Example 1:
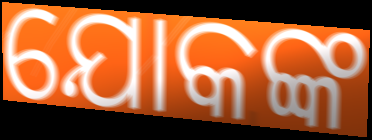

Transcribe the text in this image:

ଯୋକଙ୍କ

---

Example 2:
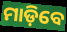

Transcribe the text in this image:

ମାଡ଼ିବେ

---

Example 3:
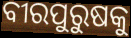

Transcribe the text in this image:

ବୀରପୁରୁଷକୁ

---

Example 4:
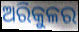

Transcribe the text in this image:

ଅରିକୁଳର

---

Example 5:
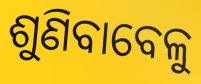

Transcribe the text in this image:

ଶୁଣିବାବେଳୁ